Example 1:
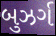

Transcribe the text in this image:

બુઝર્ગ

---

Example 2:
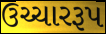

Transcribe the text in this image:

ઉચ્ચારરૂપ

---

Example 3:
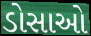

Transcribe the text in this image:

ડોસાઓ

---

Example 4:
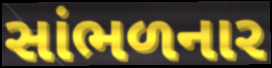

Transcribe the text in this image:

સાંભળનાર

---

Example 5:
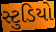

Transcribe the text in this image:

સ્ટુડિયો